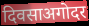
दिवसाअगोदर